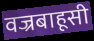
वज्रबाहूसी